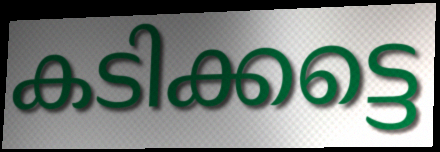
കടിക്കട്ടെ